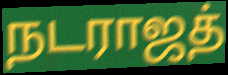
நடராஜத்